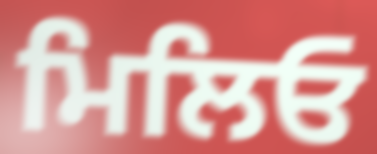
ਮਿਲਿਓ